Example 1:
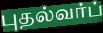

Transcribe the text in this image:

புதல்வர்ப்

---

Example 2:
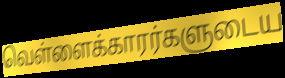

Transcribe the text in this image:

வெள்ளைக்காரர்களுடைய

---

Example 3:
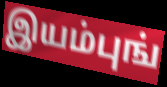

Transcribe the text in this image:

இயம்புங்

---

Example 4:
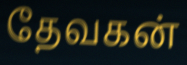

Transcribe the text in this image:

தேவகன்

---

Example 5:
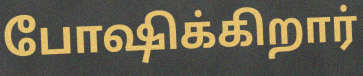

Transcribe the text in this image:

போஷிக்கிறார்